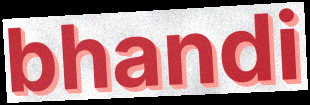
bhandi